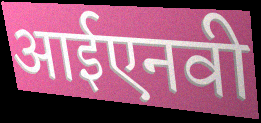
आईएनवी